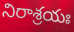
నిరాశ్రయః